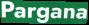
Pargana